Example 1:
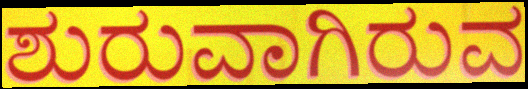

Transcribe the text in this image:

ಶುರುವಾಗಿರುವ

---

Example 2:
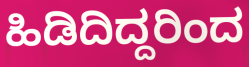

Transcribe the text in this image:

ಹಿಡಿದಿದ್ದರಿಂದ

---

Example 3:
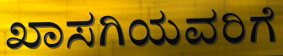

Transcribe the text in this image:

ಖಾಸಗಿಯವರಿಗೆ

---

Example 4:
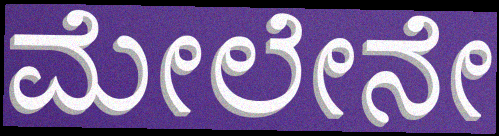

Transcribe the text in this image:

ಮೇಲೇನೇ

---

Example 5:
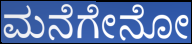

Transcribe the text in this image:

ಮನೆಗೇನೋ